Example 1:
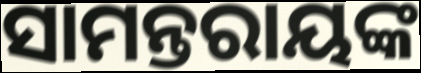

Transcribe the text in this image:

ସାମନ୍ତରାୟଙ୍କ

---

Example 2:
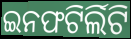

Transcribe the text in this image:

ଇନଫଟିର୍ଲିଟି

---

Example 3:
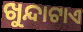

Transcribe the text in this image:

ଖୁନ୍ଦାଟାଏ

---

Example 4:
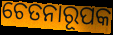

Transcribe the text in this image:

ଚେତନାରୂପକ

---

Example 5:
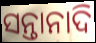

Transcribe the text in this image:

ସନ୍ତାନାଦି